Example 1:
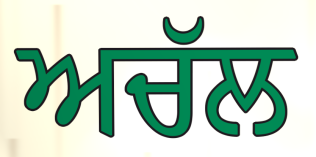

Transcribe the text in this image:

ਅਚੱਲ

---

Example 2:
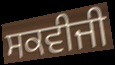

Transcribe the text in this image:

ਸਕਵੀਜੀ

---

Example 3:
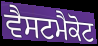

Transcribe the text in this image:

ਵੈਸਟਮੈਕੋਟ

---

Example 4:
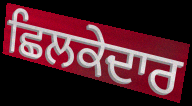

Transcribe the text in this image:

ਛਿਲਕੇਦਾਰ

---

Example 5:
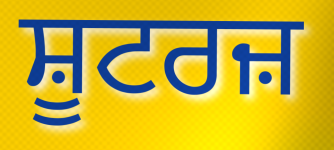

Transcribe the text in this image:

ਸ਼ੂਟਰਜ਼